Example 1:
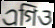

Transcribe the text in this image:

এগিও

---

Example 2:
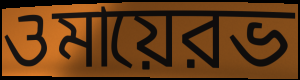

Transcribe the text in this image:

ওমায়েরভ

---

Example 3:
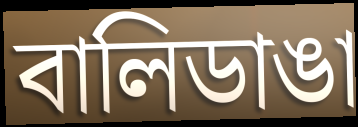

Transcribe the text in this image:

বালিডাঙা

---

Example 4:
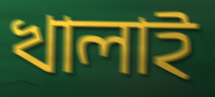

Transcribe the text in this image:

খালাই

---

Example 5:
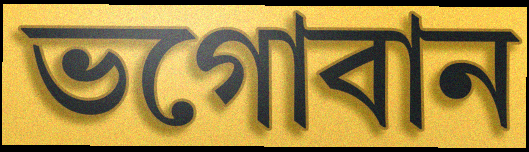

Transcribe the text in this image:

ভগোবান